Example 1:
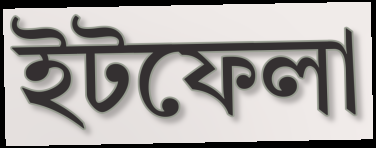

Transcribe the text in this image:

ইটফেলা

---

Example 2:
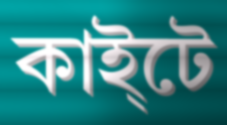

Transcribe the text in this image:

কাই্টে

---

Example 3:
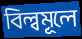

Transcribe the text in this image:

বিল্বমূলে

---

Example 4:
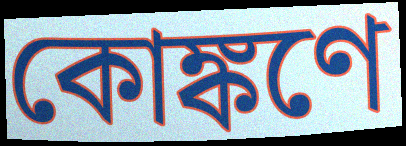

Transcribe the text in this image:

কোঙ্কণে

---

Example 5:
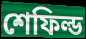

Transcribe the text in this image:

শেফিল্ড